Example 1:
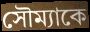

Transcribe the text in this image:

সৌম্যাকে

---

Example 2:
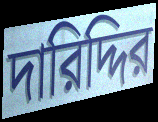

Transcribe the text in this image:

দারিদ্দির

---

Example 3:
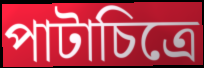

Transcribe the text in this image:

পাটাচিত্রে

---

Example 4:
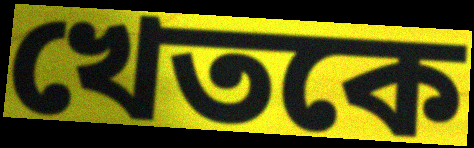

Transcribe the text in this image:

খেতকে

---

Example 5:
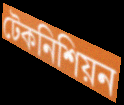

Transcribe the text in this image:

টেকনিশিয়ন